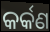
କର୍କଣ